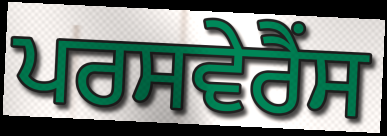
ਪਰਸਵੇਰੈਂਸ